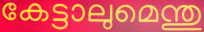
കേട്ടാലുമെന്തു